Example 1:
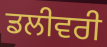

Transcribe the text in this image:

ਡਲੀਵਰੀ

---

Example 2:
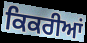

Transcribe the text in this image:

ਕਿਕਰੀਆਂ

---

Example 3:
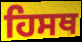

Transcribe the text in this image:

ਹਿਸਥ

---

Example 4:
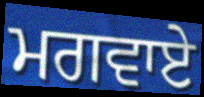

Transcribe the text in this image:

ਮਗਵਾਏ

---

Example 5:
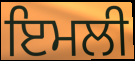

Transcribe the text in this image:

ਇਮਲੀ